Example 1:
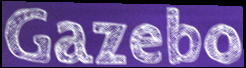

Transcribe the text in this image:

Gazebo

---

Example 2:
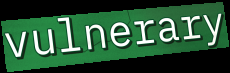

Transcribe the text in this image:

vulnerary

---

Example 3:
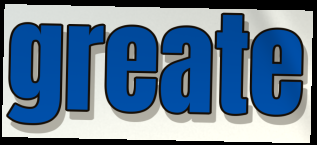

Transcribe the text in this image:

greate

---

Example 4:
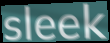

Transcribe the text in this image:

sleek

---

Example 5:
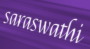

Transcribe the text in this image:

saraswathi